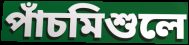
পাঁচমিশুলে